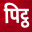
पिट्ठ